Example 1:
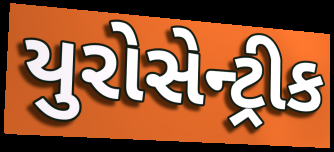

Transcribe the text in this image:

યુરોસેન્ટ્રીક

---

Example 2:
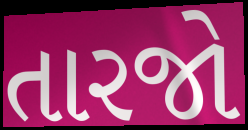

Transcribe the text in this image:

તારજો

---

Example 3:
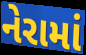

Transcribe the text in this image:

નેરામાં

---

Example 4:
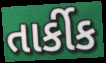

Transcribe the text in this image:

તાર્કીક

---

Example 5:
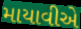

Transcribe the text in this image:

માયાવીએ